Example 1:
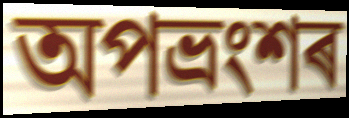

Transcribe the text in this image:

অপভ্ৰংশৰ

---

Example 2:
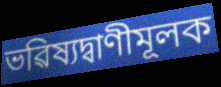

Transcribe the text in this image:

ভৱিষ্যদ্বাণীমূলক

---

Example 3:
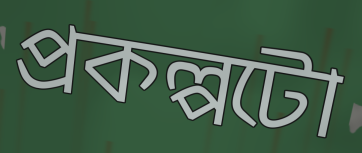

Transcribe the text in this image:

প্ৰকল্পটো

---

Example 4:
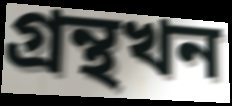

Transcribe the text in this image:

গ্ৰন্থখন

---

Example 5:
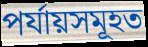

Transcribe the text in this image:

পৰ্যায়সমূহত